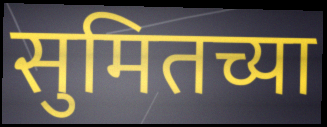
सुमितच्या